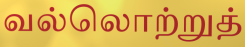
வல்லொற்றுத்